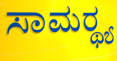
ಸಾಮರ್‍ಥ್ಯ